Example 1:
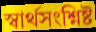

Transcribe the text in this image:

স্বার্থসংশ্নিষ্ট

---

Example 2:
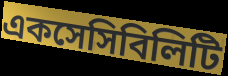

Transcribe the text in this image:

একসেসিবিলিটি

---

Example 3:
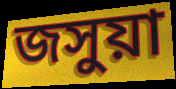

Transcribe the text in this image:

জসুয়া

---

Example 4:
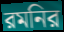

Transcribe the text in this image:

রমনির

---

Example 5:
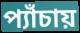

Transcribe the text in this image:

প্যাঁচায়